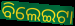
ବିଲେଇଟା